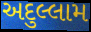
અદુલ્લામ